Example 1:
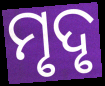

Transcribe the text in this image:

ମୃଦୃ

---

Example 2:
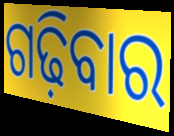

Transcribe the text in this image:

ଗଢ଼ିବାର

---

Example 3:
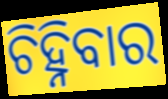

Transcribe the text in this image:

ଚିହ୍ନିବାର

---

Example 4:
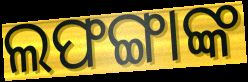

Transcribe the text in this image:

ଲଫଙ୍ଗାଙ୍କ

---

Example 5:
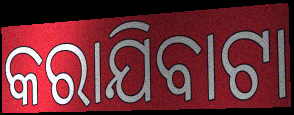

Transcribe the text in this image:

କରାଯିବାଟା